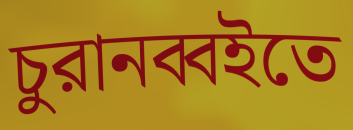
চুরানব্বইতে